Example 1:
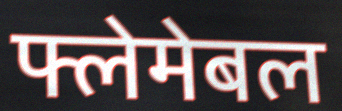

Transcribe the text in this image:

फ्लेमेबल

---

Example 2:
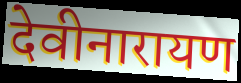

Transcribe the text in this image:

देवीनारायण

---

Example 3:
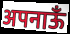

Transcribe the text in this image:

अपनाऊँ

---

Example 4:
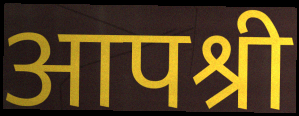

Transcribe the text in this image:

आपश्री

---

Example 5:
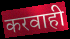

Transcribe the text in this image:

करवाही